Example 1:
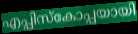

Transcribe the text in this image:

എപ്പിസ്കോപ്പയായി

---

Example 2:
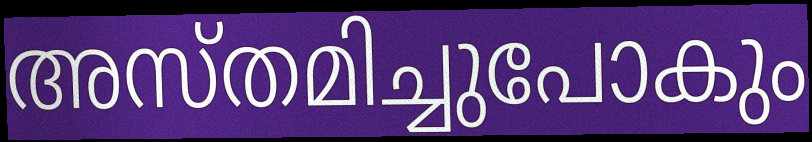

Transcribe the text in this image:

അസ്തമിച്ചുപോകും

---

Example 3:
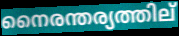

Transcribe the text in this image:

നൈരന്തര്യത്തില്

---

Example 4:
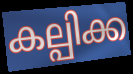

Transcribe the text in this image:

കല്പിക്ക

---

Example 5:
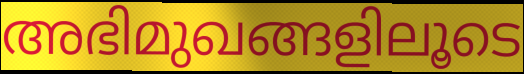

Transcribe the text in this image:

അഭിമുഖങ്ങളിലൂടെ